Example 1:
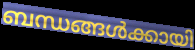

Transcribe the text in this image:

ബന്ധങ്ങൾക്കായി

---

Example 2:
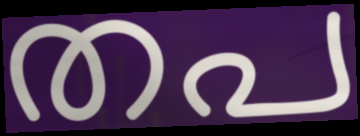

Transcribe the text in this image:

തപ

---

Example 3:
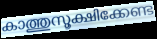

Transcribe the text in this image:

കാത്തുസൂക്ഷിക്കേണ്ട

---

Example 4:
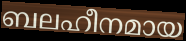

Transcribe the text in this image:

ബലഹീനമായ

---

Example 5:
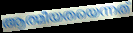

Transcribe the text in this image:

ആത്മീയതയെന്നത്